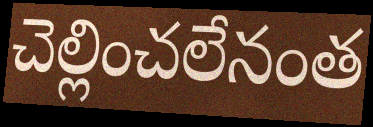
చెల్లించలేనంత